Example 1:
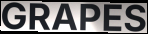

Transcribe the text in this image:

GRAPES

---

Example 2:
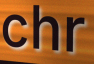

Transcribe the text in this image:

chr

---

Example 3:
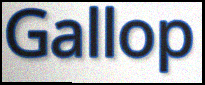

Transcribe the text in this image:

Gallop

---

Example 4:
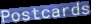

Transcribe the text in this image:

Postcards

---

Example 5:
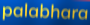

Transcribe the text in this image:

palabhara